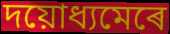
দয়োধ্যমেৰে